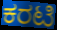
ಕರಟಿ